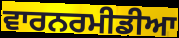
ਵਾਰਨਰਮੀਡੀਆ